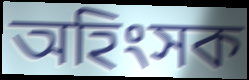
অহিংসক